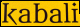
kabali